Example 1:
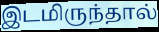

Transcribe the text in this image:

இடமிருந்தால்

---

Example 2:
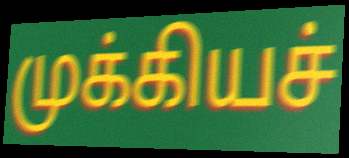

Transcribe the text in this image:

முக்கியச்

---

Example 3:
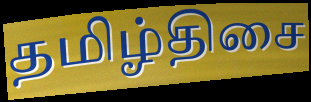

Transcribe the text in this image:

தமிழ்திசை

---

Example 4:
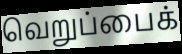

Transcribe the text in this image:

வெறுப்பைக்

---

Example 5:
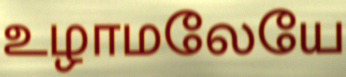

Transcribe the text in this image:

உழாமலேயே